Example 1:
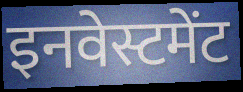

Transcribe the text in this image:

इनवेस्टमेंट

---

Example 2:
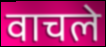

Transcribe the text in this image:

वाचले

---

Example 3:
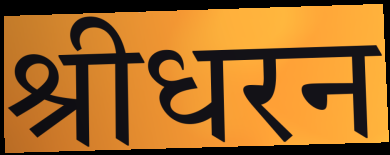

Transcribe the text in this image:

श्रीधरन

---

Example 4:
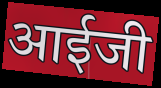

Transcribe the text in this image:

आईजी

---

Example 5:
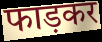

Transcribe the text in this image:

फाड़कर